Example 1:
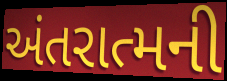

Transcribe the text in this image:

અંતરાત્મની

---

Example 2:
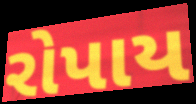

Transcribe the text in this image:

રોપાય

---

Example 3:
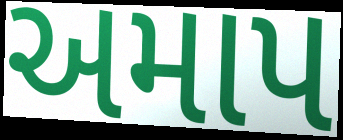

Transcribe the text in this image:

અમાપ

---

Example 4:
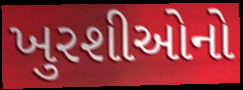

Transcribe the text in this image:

ખુરશીઓનો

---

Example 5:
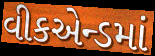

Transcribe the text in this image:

વીકએન્ડમાં